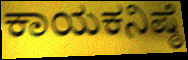
ಕಾಯಕನಿಷ್ಠೆ